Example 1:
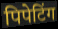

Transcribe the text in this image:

पिपेटिंग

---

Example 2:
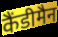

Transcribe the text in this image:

कैंडीमैन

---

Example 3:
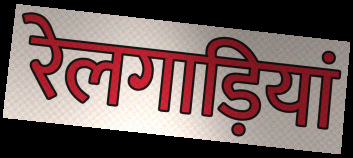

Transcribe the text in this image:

रेलगाड़ियां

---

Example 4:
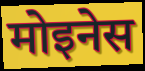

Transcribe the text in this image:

मोइनेस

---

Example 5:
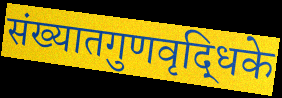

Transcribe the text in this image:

संख्यातगुणवृद्धिके